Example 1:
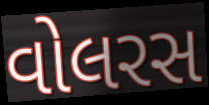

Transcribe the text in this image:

વોલરસ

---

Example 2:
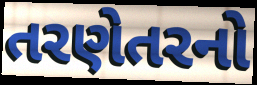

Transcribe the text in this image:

તરણેતરનો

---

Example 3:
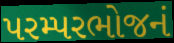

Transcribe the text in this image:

પરમ્પરભોજનં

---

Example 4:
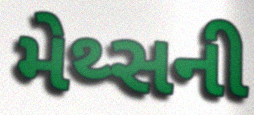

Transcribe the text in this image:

મેથ્સની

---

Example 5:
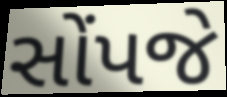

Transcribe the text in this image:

સોંપજે